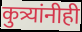
कुत्र्यांनीही